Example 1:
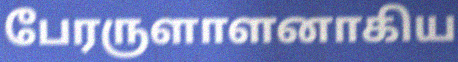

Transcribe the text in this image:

பேரருளாளனாகிய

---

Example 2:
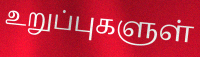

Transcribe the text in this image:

உறுப்புகளுள்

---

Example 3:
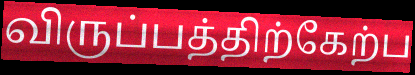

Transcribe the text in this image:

விருப்பத்திற்கேற்ப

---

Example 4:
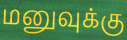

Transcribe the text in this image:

மனுவுக்கு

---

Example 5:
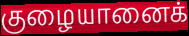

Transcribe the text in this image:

குழையானைக்